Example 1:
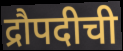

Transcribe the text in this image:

द्रौपदीची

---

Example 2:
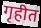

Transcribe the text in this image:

गृहीत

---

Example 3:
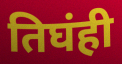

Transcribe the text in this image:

तिघंही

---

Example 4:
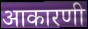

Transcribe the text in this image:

आकारणी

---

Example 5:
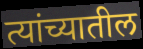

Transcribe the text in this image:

त्यांच्यातील